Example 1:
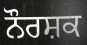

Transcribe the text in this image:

ਨੌਰਸ਼ਕ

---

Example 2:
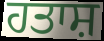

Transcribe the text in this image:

ਹਤਾਸ਼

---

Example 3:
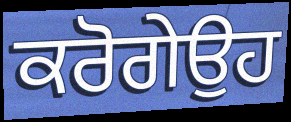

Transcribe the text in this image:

ਕਰੋਗੇਉਹ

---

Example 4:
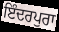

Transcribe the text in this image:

ਇੰਦਰਪੁਰਾ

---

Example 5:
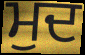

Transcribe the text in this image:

ਮੁਦ